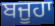
ਬਜੂਹਾ